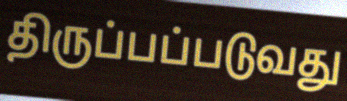
திருப்பப்படுவது